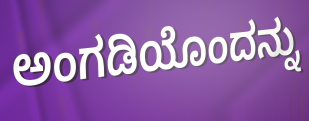
ಅಂಗಡಿಯೊಂದನ್ನು